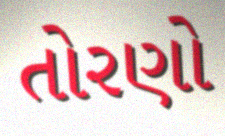
તોરણો